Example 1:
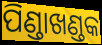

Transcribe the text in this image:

ପିଣ୍ଡାଖଣ୍ଡକ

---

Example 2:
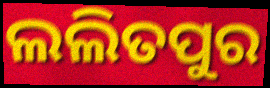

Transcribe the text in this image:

ଲଲିତପୁର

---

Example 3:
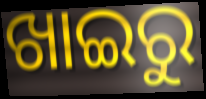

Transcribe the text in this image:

ଖାଇରୁ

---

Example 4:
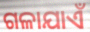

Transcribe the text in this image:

ଗଳାଯାଏଁ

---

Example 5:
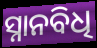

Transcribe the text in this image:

ସ୍ନାନବିଧି